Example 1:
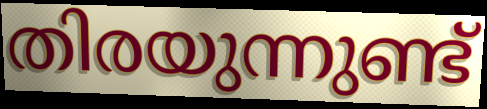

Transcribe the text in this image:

തിരയുന്നുണ്ട്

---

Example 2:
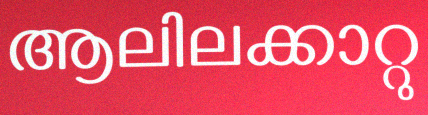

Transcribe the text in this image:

ആലിലക്കാറ്റു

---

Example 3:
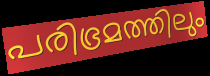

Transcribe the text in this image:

പരിഭ്രമത്തിലും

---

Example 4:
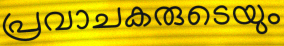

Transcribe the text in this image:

പ്രവാചകരുടെയും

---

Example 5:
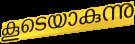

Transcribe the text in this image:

കൂടെയാകുന്നു